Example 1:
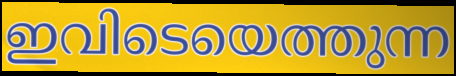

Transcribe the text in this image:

ഇവിടെയെത്തുന്ന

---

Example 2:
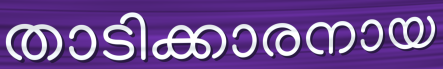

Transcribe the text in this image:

താടിക്കാരനായ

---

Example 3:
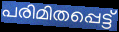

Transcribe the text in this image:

പരിമിതപ്പെട്ട്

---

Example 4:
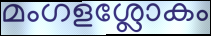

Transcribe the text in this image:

മംഗളശ്ലോകം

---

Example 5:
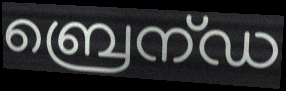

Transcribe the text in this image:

ബ്രെന്ഡ